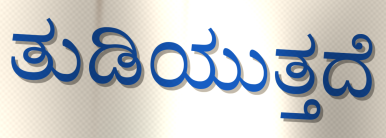
ತುಡಿಯುತ್ತದೆ